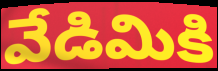
వేడిమికి